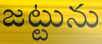
జట్టును